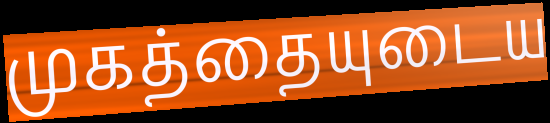
முகத்தையுடைய